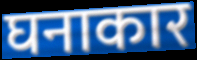
घनाकार